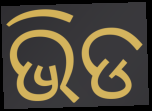
ଭିଡ